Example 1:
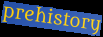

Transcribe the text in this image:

prehistory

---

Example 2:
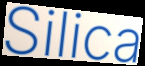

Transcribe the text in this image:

Silica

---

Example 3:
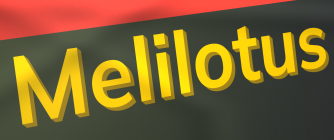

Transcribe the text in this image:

Melilotus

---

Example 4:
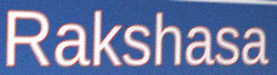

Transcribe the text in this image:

Rakshasa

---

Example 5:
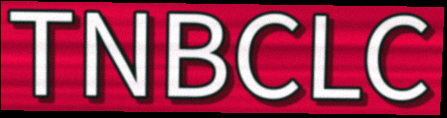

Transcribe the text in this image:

TNBCLC